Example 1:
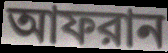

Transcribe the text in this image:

আফরান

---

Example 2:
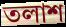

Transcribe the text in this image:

তলাশ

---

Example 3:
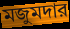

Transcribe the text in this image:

মজুমদার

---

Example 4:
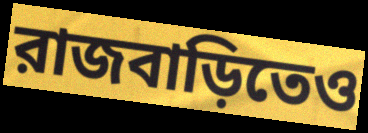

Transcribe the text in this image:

রাজবাড়িতেও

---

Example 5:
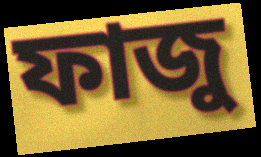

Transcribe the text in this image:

ফাজু